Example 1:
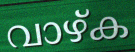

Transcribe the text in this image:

വാഴ്ക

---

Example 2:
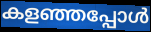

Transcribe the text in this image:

കളഞ്ഞപ്പോൾ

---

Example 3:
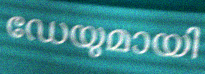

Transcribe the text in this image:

ഡേയുമായി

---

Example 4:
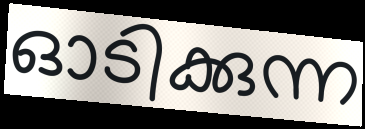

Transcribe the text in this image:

ഓടിക്കുന്ന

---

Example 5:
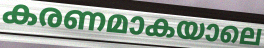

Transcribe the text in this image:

കരണമാകയാലെ